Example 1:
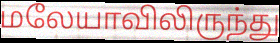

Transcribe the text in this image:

மலேயாவிலிருந்து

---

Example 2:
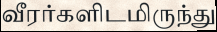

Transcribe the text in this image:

வீரர்களிடமிருந்து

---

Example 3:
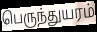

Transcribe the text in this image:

பெருந்துயரம்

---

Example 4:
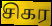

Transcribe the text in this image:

சிகர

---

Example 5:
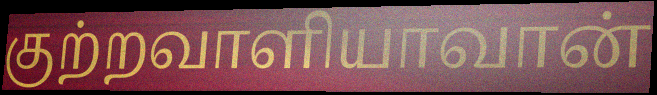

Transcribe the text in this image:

குற்றவாளியாவான்